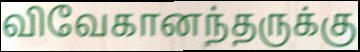
விவேகானந்தருக்கு